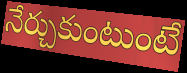
నేర్చుకుంటుంటే